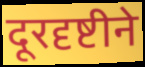
दूरदृष्टीने